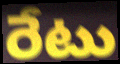
రేటు